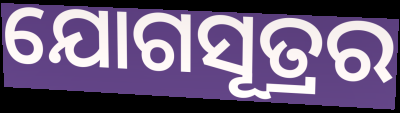
ଯୋଗସୂତ୍ରର